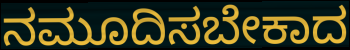
ನಮೂದಿಸಬೇಕಾದ